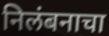
निलंबनाचा